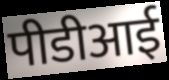
पीडीआई